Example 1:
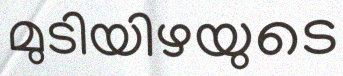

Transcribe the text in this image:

മുടിയിഴയുടെ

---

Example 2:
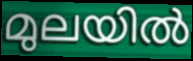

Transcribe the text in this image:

മുലയിൽ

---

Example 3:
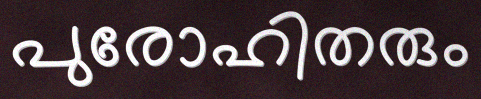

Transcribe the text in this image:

പുരോഹിതരും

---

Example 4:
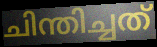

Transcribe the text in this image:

ചിന്തിച്ചത്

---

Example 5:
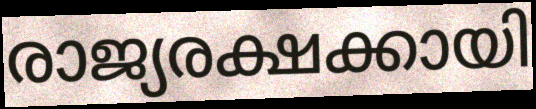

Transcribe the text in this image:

രാജ്യരക്ഷക്കായി